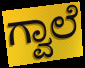
ಗ್ವಾಲೆ